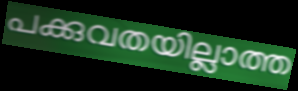
പക്കുവതയില്ലാത്ത